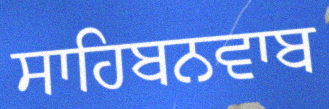
ਸਾਹਿਬਨਵਾਬ